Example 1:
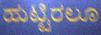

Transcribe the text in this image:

ಹುಟ್ಟಿರಲೂ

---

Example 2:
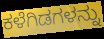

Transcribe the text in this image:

ಕಳೆಗಿಡಗಳನ್ನು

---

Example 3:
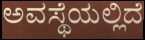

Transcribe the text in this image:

ಅವಸ್ಥೆಯಲ್ಲಿದೆ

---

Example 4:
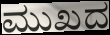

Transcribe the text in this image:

ಮುಖದ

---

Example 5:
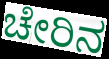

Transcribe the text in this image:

ಚೇರಿನ